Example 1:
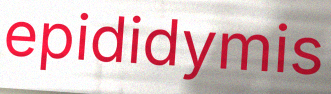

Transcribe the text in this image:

epididymis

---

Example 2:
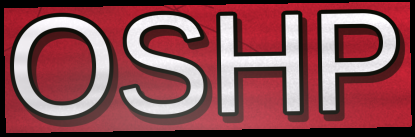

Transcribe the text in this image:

OSHP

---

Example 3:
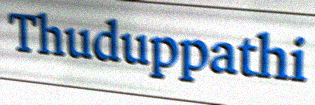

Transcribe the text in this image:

Thuduppathi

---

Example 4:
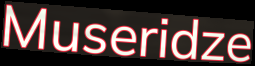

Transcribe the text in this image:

Museridze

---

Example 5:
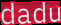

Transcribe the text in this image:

dadu